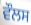
ਵੌਲਸ